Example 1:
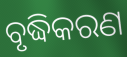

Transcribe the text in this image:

ବୃଦ୍ଧିକରଣ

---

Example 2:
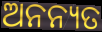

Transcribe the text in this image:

ଅନନ୍ୟତ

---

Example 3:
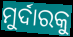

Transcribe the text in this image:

ମୁର୍ଦାରକୁ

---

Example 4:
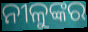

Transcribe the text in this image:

ନୀଳୁଙ୍କର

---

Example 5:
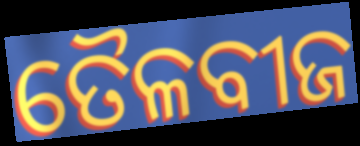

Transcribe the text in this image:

ତୈଳବୀଜ